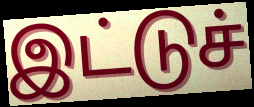
இட்டுச்